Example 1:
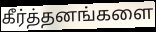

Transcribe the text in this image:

கீர்த்தனங்களை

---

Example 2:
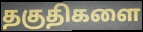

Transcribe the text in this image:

தகுதிகளை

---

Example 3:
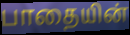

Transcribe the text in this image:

பாதையின்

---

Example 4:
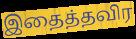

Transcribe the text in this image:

இதைத்தவிர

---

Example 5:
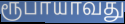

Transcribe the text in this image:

ரூபாயாவது